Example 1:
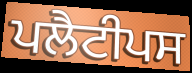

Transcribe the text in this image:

ਪਲੈਟੀਪਸ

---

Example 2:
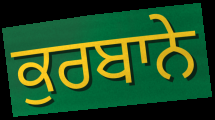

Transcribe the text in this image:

ਕੁਰਬਾਨੇ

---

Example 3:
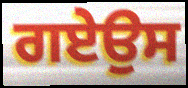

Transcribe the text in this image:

ਗਏਉਸ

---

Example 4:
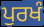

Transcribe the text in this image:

ਪੁਰਖੰ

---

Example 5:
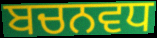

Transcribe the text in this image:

ਬਚਨਵਧ